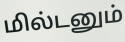
மில்டனும்